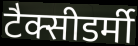
टैक्सीडर्मी